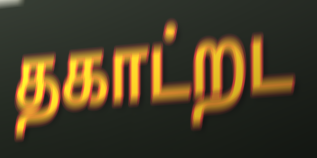
தகாட்றட